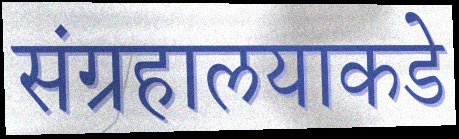
संग्रहालयाकडे